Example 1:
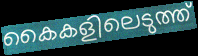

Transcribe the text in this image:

കൈകളിലെടുത്ത്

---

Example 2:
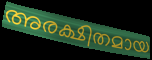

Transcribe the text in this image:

അരക്ഷിതമായ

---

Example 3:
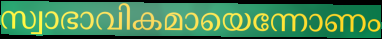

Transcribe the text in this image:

സ്വാഭാവികമായെന്നോണം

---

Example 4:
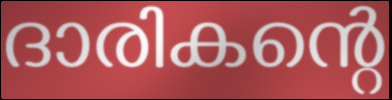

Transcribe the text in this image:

ദാരികന്റെ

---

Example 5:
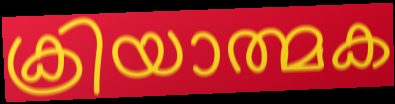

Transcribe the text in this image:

ക്രിയാത്മക